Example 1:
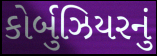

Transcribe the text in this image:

કોર્બુઝિયરનું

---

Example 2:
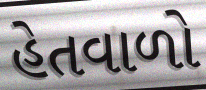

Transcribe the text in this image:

હેતવાળો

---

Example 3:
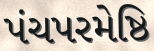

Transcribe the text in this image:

પંચપરમેષ્ઠિ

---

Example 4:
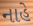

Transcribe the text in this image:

નાહે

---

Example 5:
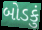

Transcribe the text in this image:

બોડકું